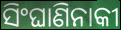
ସିଂଘାଣିନାକୀ